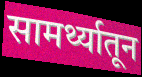
सामर्थ्यातून